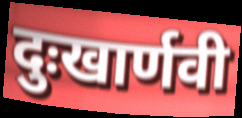
दुःखार्णवी